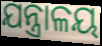
ଯନ୍ତ୍ରାଳୟ